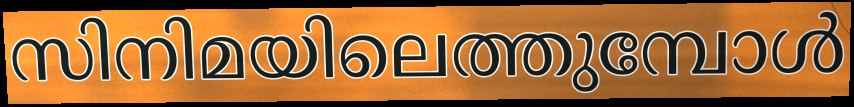
സിനിമയിലെത്തുമ്പോൾ